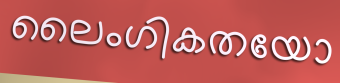
ലൈംഗികതയോ